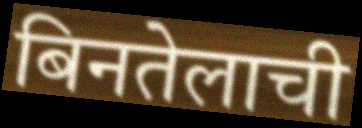
बिनतेलाची